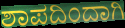
ಶಾಪದಿಂದಾಗಿ